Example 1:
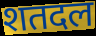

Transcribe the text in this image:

शतदल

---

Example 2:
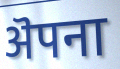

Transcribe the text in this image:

ऄपना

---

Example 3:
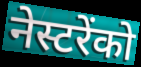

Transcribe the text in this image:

नेस्टरेंको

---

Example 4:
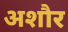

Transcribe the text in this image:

अशौर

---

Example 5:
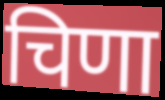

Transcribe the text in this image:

चिणा